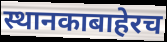
स्थानकाबाहेरच